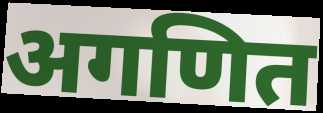
अगणित